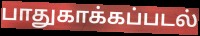
பாதுகாக்கப்படல்